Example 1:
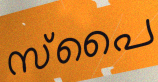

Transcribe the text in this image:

സ്പൈ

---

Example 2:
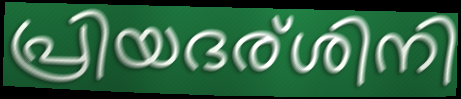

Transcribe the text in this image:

പ്രിയദര്ശിനി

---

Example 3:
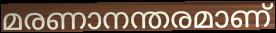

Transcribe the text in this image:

മരണാനന്തരമാണ്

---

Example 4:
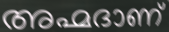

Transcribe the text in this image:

അഹ്മദാണ്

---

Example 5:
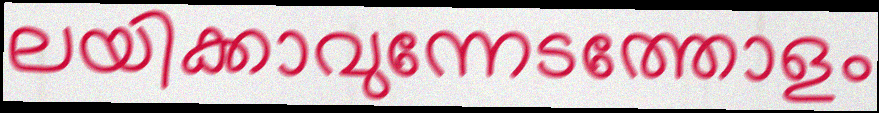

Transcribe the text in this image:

ലയിക്കാവുന്നേടത്തോളം